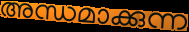
അന്ധമാക്കുന്ന